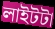
লাইটটা